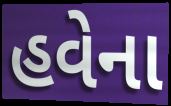
હવેના